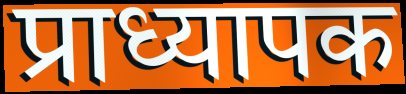
प्राध्यापक